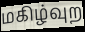
மகிழ்வுற